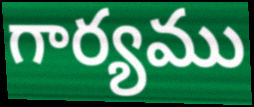
గార్యము